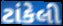
ટાંકેલી